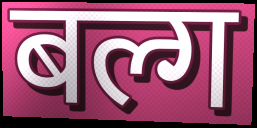
बल्ग